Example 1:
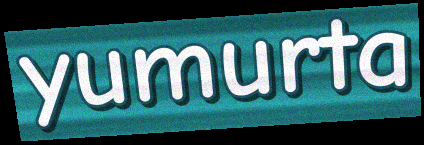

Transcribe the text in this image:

yumurta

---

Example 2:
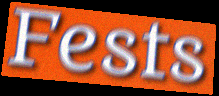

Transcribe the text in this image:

Fests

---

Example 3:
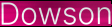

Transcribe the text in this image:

Dowson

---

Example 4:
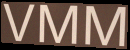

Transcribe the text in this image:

VMM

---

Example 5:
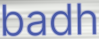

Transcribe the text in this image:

badh